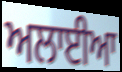
ਅਲਾਈਆ